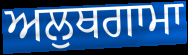
ਅਲੁਥਗਾਮਾ